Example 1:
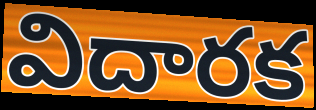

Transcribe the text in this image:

విదారక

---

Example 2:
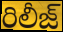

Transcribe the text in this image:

రిలీజ్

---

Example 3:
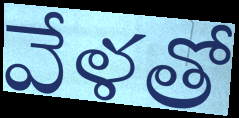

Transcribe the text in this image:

వేళతో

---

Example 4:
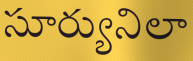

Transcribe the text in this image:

సూర్యునిలా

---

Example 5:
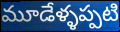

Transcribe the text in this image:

మూడేళ్ళప్పటి